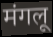
मंगलू